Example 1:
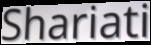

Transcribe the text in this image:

Shariati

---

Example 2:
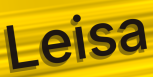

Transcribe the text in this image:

Leisa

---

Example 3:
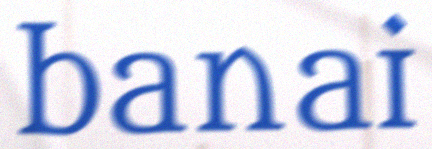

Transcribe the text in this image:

banai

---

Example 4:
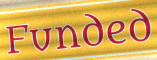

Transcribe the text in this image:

Funded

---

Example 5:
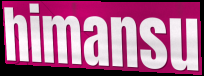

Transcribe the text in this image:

himansu